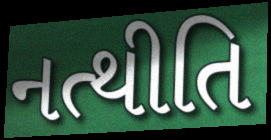
નત્થીતિ